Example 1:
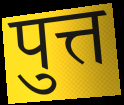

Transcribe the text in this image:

पुत्त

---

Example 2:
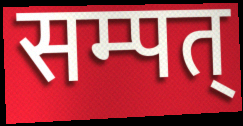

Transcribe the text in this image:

सम्पत्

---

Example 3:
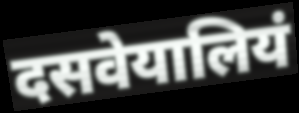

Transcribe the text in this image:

दसवेयालियं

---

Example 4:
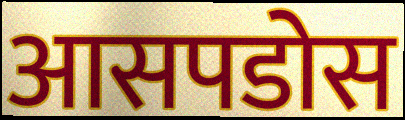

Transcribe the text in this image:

आसपडोस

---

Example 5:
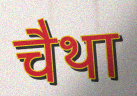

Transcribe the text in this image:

चैथा